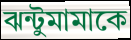
ঝন্টুমামাকে